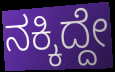
ನಕ್ಕಿದ್ದೇ